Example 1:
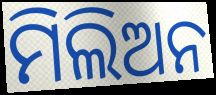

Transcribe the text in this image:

ମିଲିଅନ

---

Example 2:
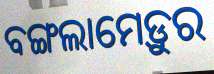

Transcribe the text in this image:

ବଙ୍ଗଲାମେଡ଼ୁର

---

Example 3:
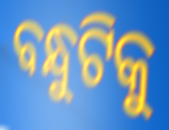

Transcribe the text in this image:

ବନ୍ଧୁଟିକୁ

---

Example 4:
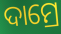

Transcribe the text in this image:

ଦାମ୍ରେ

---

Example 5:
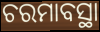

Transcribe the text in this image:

ଚରମାବସ୍ଥା